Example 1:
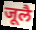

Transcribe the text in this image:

जूलै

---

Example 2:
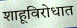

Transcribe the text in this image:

शाहूविरोधात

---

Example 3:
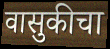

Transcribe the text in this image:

वासुकीचा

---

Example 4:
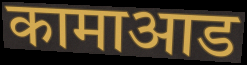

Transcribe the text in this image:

कामाआड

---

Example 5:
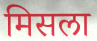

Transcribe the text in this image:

मिसला